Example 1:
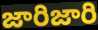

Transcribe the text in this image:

జారిజారి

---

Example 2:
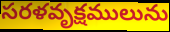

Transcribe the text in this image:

సరళవృక్షములును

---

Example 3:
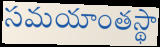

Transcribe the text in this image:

సమయాంతస్థా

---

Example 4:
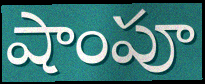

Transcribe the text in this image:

షాంపూ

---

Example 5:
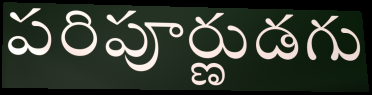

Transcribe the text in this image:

పరిపూర్ణుడగు